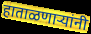
हाताळणाऱ्यांनी